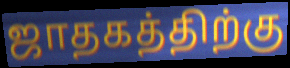
ஜாதகத்திற்கு